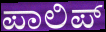
ಪಾಲಿಪ್